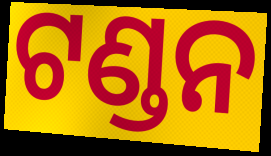
ଟଣ୍ଡନ